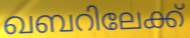
ഖബറിലേക്ക്